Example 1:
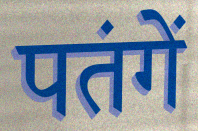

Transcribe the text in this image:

पतंगें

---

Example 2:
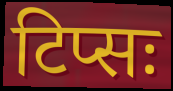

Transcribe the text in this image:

टिप्सः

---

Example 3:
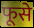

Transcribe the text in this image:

फूसे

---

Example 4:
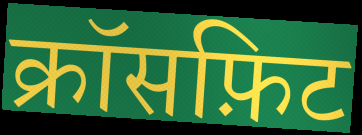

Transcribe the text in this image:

क्रॉसफ़िट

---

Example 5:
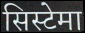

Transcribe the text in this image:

सिस्टेमा